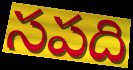
సపది